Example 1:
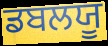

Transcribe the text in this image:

ਡਬਲਯੂ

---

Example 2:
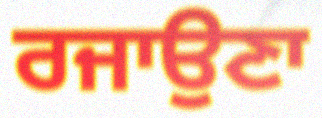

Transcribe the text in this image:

ਰਜਾਉਣਾ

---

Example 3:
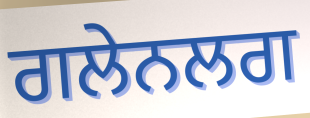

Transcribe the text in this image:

ਗਲੇਨਲਗ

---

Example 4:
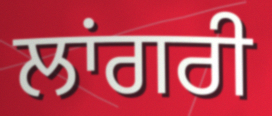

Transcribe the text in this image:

ਲਾਂਗਰੀ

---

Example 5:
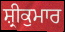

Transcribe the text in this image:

ਸ਼੍ਰੀਕੁਮਾਰ